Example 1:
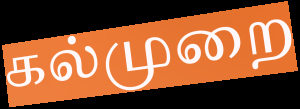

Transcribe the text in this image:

கல்முறை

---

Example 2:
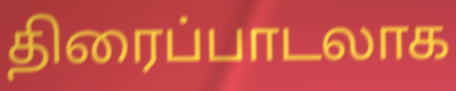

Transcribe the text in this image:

திரைப்பாடலாக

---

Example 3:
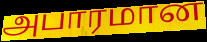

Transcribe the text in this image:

அபாரமான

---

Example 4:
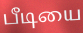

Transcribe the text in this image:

பீடியை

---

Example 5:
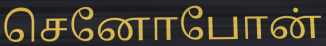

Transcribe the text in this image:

செனோபோன்